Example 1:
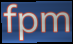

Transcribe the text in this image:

fpm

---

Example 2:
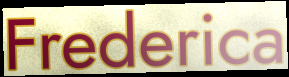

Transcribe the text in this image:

Frederica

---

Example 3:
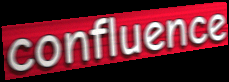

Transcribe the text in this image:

confluence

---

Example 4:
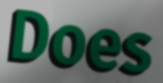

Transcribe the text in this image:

Does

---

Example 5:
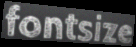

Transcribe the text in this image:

fontsize